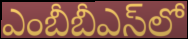
ఎంబీబీఎస్‌లో